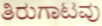
ತಿರುಗಾಟವು